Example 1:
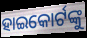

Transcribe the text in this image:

ହାଇକୋର୍ଟଙ୍କୁ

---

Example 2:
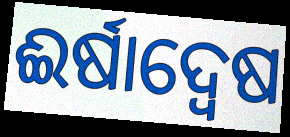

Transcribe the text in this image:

ଈର୍ଷାଦ୍ଵେଷ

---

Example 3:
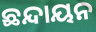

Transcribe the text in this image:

ଛନ୍ଦାୟନ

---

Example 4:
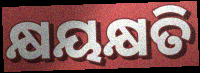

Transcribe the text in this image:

କ୍ଷୟକ୍ଷତି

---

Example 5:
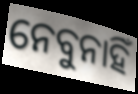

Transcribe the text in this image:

ନେବୁନାହିଁ